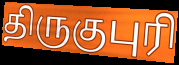
திருகுபுரி